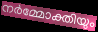
നർമ്മോക്തിയും